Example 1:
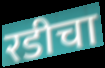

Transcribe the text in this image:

रडीचा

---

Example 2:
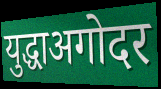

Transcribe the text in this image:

युद्धाअगोदर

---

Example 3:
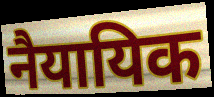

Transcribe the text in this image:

नैयायिक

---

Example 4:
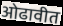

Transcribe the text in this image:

ओढावीत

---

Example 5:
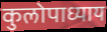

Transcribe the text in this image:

कुलोपाध्याय